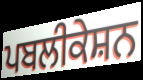
ਪਬਲੀਕੇਸ਼ਨ